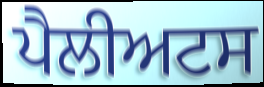
ਪੈਲੀਅਟਸ